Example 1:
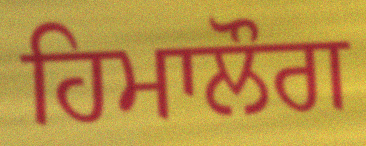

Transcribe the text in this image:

ਹਿਮਾਲੌਗ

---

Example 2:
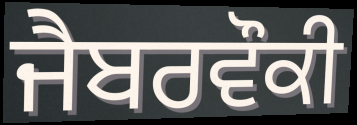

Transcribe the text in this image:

ਜੈਬਰਵੌਕੀ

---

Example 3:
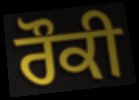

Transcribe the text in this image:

ਰੌਕੀ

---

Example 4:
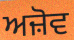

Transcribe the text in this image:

ਅਜ਼ੋਵ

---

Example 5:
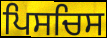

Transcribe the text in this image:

ਪਿਸਚਿਸ